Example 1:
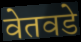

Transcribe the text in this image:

वेतवडे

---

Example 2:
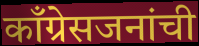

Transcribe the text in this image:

काँग्रेसजनांची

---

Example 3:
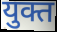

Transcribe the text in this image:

युक्त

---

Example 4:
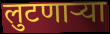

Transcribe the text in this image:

लुटणाऱ्या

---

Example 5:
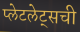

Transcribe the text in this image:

प्लेटलेट्‌सची